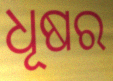
ଧୂଷର